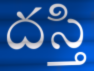
దస్తి